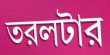
তরলটার